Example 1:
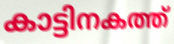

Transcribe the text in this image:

കാട്ടിനകത്ത്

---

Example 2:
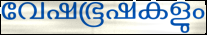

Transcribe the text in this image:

വേഷഭൂഷകളും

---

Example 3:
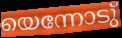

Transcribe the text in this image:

യെന്നോടു്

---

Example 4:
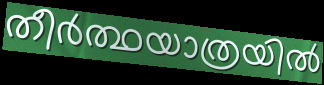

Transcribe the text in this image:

തീർത്ഥയാത്രയിൽ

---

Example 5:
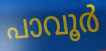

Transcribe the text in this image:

പാവൂർ